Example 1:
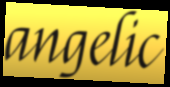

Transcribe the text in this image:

angelic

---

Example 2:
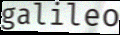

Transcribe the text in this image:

galileo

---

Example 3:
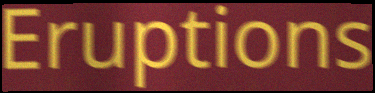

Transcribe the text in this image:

Eruptions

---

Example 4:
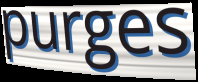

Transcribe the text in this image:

purges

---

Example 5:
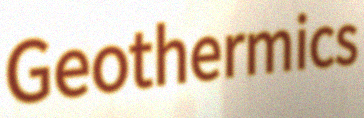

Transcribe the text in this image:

Geothermics